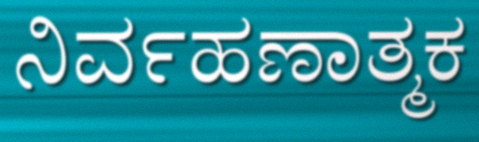
ನಿರ್ವಹಣಾತ್ಮಕ